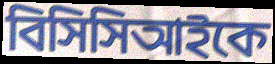
বিসিসিআইকে